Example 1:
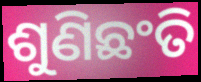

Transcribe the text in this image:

ଶୁଣିଛଂତି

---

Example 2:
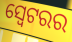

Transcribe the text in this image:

ସ୍ୱେଟରର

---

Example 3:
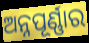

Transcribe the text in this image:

ଅନ୍ନପୂର୍ଣ୍ଣାର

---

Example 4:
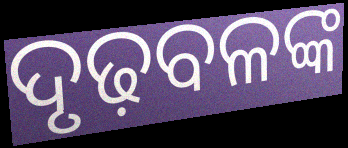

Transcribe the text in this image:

ଦୃଢ଼ବଳଙ୍କ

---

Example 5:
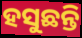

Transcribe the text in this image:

ହସୁଛନ୍ତି